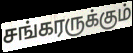
சங்கரருக்கும்